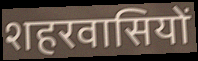
शहरवासियों